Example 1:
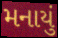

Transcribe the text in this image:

મનાયું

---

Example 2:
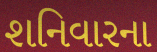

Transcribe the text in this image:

શનિવારના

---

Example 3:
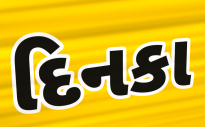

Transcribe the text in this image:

દિનકા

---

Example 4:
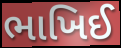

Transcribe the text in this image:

ભાખિઈ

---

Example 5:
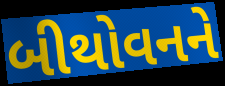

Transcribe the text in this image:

બીથોવનને